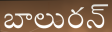
బాలురన్